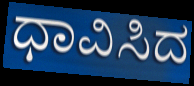
ಧಾವಿಸಿದ